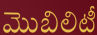
మొబిలిటీ